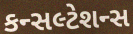
કન્સલ્ટેશન્સ